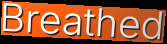
Breathed